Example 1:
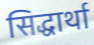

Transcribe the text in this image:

सिद्धार्था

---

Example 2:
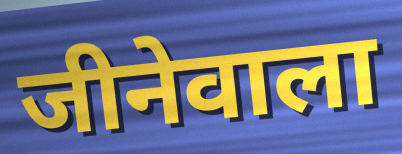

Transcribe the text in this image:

जीनेवाला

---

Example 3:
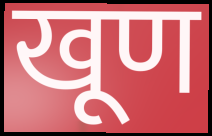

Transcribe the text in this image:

खूण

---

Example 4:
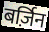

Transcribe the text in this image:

बर्ज़िन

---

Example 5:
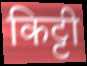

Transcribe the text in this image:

किट्टी